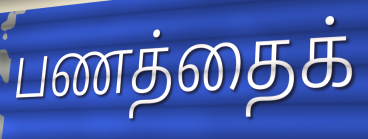
பணத்தைக்